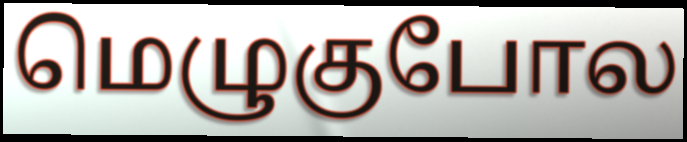
மெழுகுபோல